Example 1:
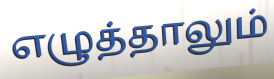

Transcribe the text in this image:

எழுத்தாலும்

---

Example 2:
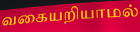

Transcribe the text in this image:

வகையறியாமல்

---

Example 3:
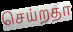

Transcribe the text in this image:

செய்றதா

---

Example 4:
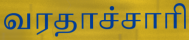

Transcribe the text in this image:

வரதாச்சாரி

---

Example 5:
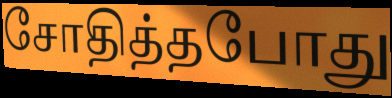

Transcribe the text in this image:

சோதித்தபோது